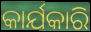
କାର୍ଯକାରି